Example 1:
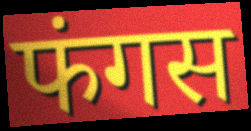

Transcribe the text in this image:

फंगस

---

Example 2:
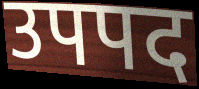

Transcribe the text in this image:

उपपद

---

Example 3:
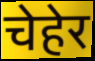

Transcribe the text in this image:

चेहेर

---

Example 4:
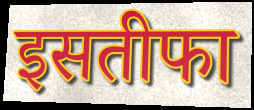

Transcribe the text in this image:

इसतीफा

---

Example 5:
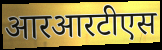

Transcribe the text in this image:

आरआरटीएस